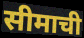
सीमाची